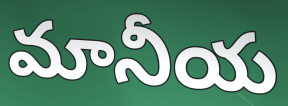
మానీయ